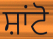
ਸ਼ਾਂਟੋ